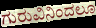
ಗುರುವಿನಿಂದಲೂ